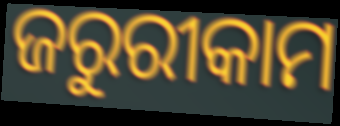
ଜରୁରୀକାମ